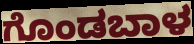
ಗೊಂಡಬಾಳ